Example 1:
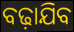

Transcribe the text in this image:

ବଢ଼ାଯିବ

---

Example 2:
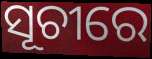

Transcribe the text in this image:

ସୂଚୀରେ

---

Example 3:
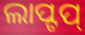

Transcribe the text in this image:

ଲାପ୍ଟପ୍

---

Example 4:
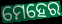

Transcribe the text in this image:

ମେହେର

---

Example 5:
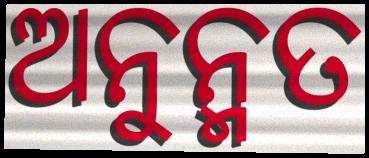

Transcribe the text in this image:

ଅନୁନ୍ମତ